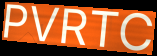
PVRTC